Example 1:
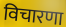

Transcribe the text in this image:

विचारणा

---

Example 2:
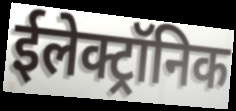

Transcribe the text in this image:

ईलेक्ट्रॉनिक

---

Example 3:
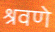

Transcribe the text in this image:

श्रवणे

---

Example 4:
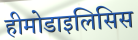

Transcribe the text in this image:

हीमोडाइलिसिस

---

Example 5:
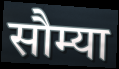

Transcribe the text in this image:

सौम्या